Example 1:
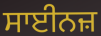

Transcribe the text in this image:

ਸਾਈਨਜ਼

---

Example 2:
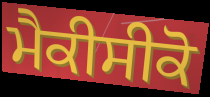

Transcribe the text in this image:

ਮੈਕੀਸੀਕੋ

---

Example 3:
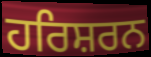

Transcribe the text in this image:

ਹਰਿਸ਼ਰਨ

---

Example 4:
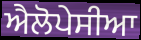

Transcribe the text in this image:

ਐਲੋਪੇਸੀਆ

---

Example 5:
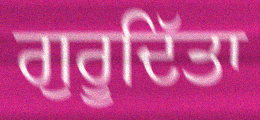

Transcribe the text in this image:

ਗੁਰੂਦਿੱਤਾ